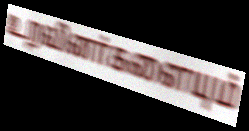
உறவினர்களையும்